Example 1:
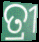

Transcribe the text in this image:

ତ୍ରୀ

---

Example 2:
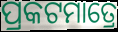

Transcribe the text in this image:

ପ୍ରକଟମାତ୍ରେ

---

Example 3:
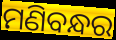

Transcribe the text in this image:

ମଣିବନ୍ଧର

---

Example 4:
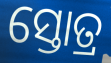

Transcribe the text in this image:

ସ୍ତୋତ୍ର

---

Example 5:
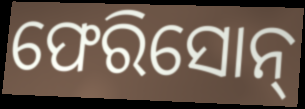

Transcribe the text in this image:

ଫେରିସୋନ୍